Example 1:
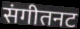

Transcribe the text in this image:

संगीतनट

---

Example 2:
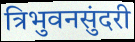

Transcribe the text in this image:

त्रिभुवनसुंदरी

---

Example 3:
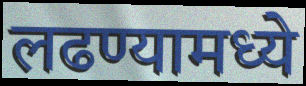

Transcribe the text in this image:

लढण्यामध्ये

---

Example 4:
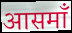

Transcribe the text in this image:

आसमाँ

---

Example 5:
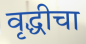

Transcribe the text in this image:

वृद्धीचा